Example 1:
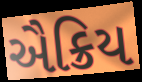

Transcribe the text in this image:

ઐક્રિય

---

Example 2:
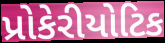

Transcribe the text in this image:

પ્રોકેરીયોટિક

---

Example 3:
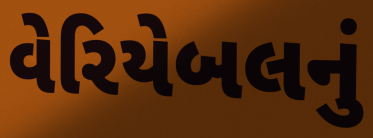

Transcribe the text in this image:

વેરિયેબલનું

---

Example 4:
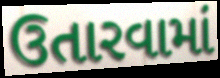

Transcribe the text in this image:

ઉતારવામાં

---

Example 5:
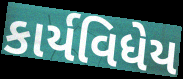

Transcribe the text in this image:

કાર્યવિધેય